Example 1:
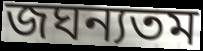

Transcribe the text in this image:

জঘন্যতম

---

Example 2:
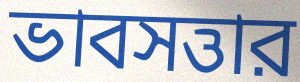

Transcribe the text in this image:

ভাবসত্তার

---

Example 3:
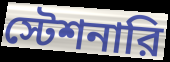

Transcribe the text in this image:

স্টেশনারি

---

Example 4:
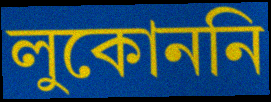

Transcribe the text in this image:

লুকোননি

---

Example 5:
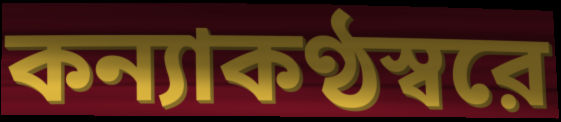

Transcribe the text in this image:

কন্যাকণ্ঠস্বরে